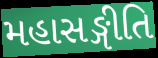
મહાસઙ્ગીતિ